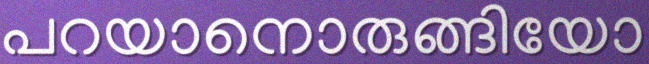
പറയാനൊരുങ്ങിയോ